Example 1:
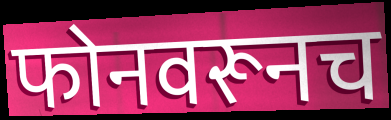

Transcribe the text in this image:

फोनवरूनच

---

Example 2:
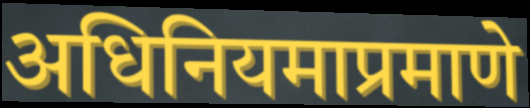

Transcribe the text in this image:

अधिनियमाप्रमाणे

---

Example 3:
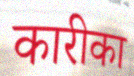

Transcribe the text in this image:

कारीका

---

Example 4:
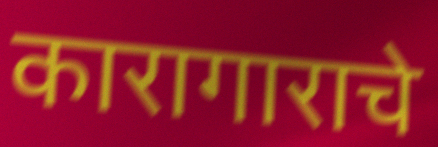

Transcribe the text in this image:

कारागाराचे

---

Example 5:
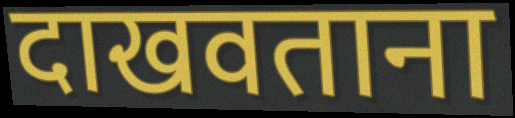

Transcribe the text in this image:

दाखवताना